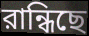
রান্ধিছে